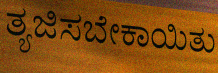
ತ್ಯಜಿಸಬೇಕಾಯಿತು